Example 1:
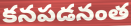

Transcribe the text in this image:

కనపడనంత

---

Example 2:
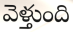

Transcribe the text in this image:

వెళ్తుంది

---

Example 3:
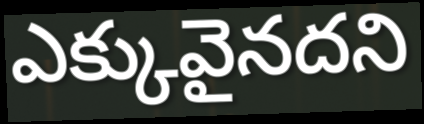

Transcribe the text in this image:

ఎక్కువైనదని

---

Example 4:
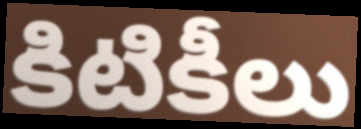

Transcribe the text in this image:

కిటికీలు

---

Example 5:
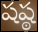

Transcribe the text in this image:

షష్ఠ